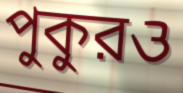
পুকুরও